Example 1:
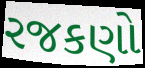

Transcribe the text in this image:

રજકણો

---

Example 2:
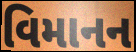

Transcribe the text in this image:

વિમાનન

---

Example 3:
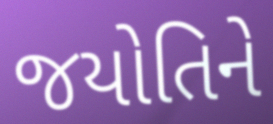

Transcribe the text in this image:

જયોતિને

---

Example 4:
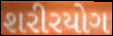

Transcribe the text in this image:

શરીરયોગ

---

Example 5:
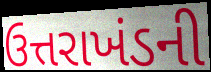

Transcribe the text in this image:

ઉત્તરાખંડની